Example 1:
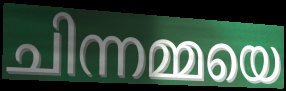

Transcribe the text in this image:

ചിന്നമ്മയെ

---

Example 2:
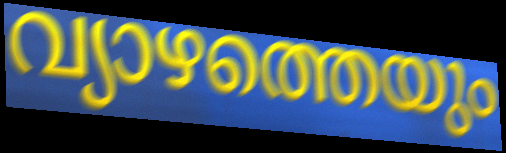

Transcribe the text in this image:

വ്യാഴത്തെയും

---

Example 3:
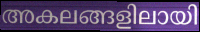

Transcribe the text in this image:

അകലങ്ങളിലായി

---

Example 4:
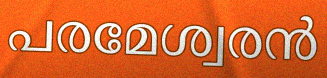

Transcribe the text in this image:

പരമേശ്വരൻ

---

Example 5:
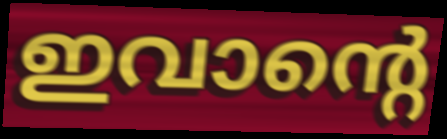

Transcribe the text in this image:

ഇവാന്റെ